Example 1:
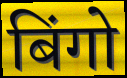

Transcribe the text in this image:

बिंगो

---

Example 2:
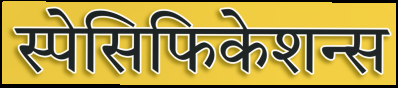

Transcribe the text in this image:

स्पेसिफिकेशन्स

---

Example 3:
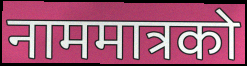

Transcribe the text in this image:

नाममात्रको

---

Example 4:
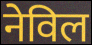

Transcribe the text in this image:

नेविल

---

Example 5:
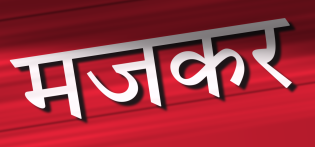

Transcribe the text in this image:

मजकर